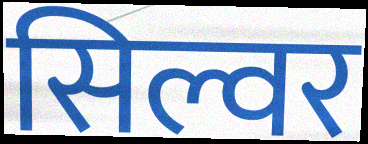
सिल्‍वर